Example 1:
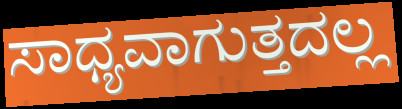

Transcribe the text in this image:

ಸಾಧ್ಯವಾಗುತ್ತದಲ್ಲ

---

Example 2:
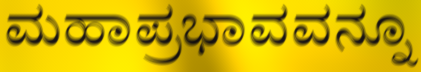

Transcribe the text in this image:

ಮಹಾಪ್ರಭಾವವನ್ನೂ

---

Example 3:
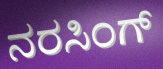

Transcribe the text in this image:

ನರಸಿಂಗ್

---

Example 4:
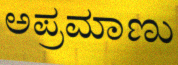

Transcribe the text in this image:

ಅಪ್ರಮಾಣು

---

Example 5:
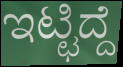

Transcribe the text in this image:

ಇಟ್ಟಿದ್ದೆ